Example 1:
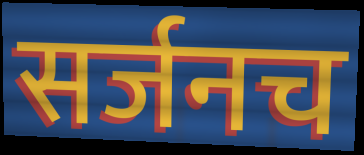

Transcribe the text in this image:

सर्जनच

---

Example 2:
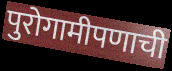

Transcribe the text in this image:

पुरोगामीपणाची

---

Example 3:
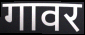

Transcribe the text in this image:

गावर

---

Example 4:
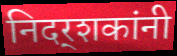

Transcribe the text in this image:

निदर्शकांनी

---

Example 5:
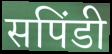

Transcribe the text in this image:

सपिंडी